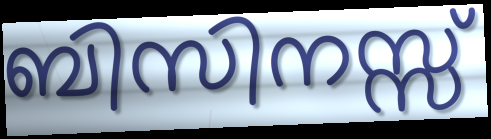
ബിസിനസ്സ്